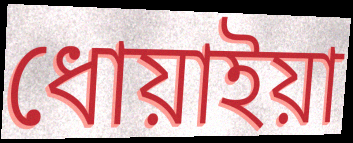
ধোয়াইয়া